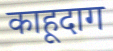
काहूदाग